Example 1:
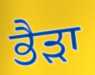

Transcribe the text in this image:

ਭੈੜਾ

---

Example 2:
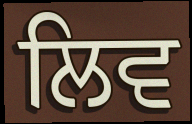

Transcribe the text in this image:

ਲਿਵ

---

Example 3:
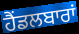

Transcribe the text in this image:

ਹੈਂਡਲਬਾਰਾਂ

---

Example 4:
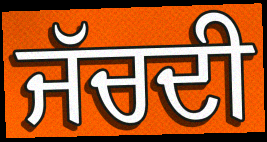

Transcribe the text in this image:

ਜੱਚਦੀ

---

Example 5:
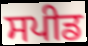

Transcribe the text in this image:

ਸਪੀਡ